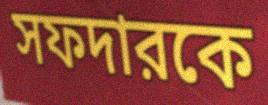
সফদারকে